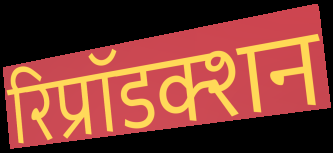
रिप्रॉडक्शन